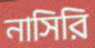
নাসিরি